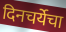
दिनचर्येचा